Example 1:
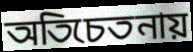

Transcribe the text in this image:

অতিচেতনায়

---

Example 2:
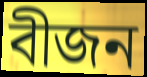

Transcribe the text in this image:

বীজন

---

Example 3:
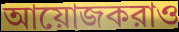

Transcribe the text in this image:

আয়োজকরাও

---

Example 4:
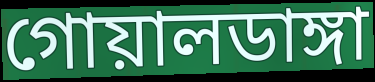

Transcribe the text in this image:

গোয়ালডাঙ্গা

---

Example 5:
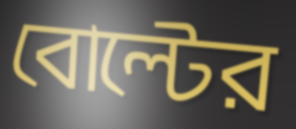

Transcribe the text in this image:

বোল্টের